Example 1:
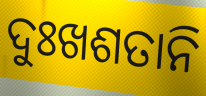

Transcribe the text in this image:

ଦୁଃଖଶତାନି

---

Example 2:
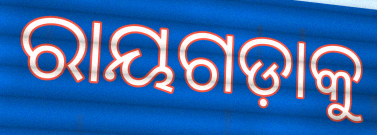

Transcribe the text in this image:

ରାୟଗଡ଼ାକୁ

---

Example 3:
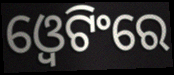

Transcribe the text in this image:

ଓ୍ୱେଟିଂରେ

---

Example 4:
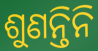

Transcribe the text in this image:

ଶୁଣନ୍ତିନି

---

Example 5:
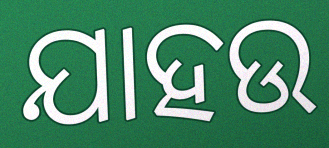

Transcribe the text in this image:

ଯାହଉ